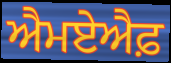
ਐਮਏਐਫ਼